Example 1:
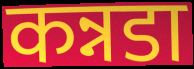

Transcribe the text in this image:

कन्नडा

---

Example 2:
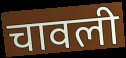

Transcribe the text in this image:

चावली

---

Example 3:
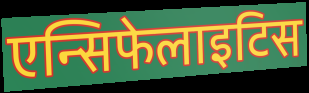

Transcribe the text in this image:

एन्सिफेलाइटिस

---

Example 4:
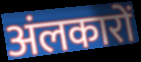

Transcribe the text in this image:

अंलकारों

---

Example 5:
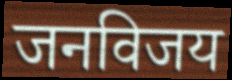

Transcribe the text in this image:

जनविजय